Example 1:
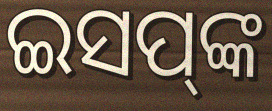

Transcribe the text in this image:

ଇସପ୍‌ଙ୍କ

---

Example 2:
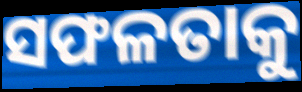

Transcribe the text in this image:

ସଫଳତାକୁ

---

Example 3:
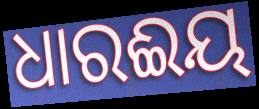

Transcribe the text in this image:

ଧାରଈୟ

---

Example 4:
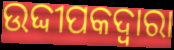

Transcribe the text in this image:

ଉଦ୍ଦୀପକଦ୍ବାରା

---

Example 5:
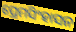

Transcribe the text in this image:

ପ୍ରେମସିଂହାସନ